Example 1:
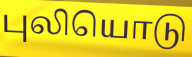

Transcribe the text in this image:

புலியொடு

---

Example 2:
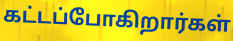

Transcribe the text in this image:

கட்டப்போகிறார்கள்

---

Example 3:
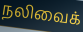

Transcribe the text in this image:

நலிவைக்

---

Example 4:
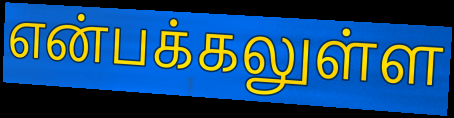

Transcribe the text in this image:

என்பக்கலுள்ள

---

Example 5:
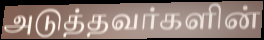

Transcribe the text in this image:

அடுத்தவர்களின்